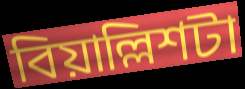
বিয়াল্লিশটা